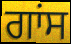
ਗਾਂਸ